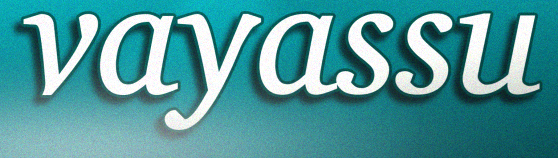
vayassu